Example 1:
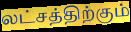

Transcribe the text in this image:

லட்சத்திற்கும்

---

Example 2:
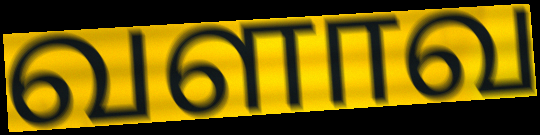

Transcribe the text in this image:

வளாவ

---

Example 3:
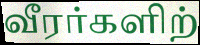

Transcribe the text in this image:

வீரர்களிற்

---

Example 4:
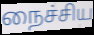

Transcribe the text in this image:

நைச்சிய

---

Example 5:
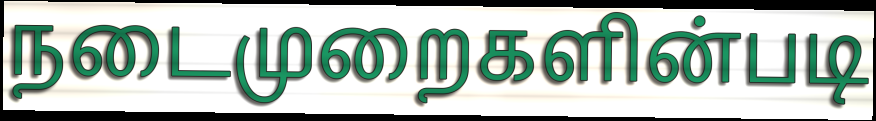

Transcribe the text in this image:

நடைமுறைகளின்படி